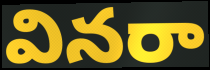
వినరా